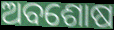
ଅବଶୋଷ